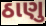
ઠાણુ